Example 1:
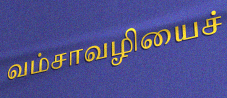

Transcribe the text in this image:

வம்சாவழியைச்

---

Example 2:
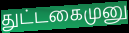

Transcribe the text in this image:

துட்டகைமுனு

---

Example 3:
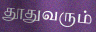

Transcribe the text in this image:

தூதுவரும்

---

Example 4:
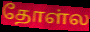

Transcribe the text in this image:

தோள்ல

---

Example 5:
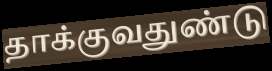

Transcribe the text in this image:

தாக்குவதுண்டு